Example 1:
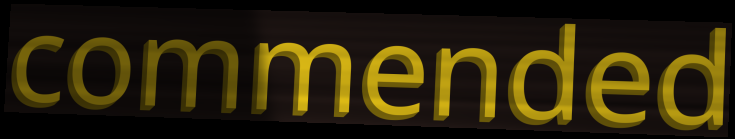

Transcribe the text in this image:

commended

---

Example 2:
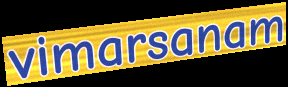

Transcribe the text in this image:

vimarsanam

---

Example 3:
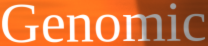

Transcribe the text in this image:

Genomic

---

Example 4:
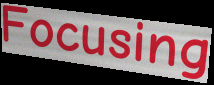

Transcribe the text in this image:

Focusing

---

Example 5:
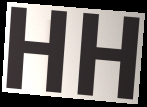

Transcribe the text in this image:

HH